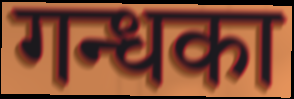
गन्धका